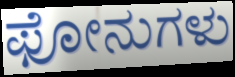
ಫೋನುಗಳು